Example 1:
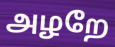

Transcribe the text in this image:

அழறே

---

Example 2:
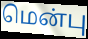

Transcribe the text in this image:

மென்பு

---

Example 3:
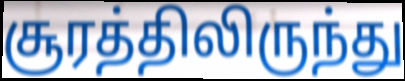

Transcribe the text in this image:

சூரத்திலிருந்து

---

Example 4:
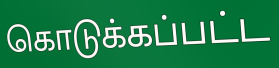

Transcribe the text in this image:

கொடுக்கப்பட்ட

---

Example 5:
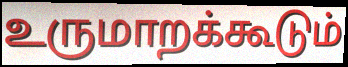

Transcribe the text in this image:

உருமாறக்கூடும்